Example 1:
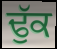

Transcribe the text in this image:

ਢੁੱਕ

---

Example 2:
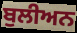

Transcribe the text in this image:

ਬੁਲੀਅਨ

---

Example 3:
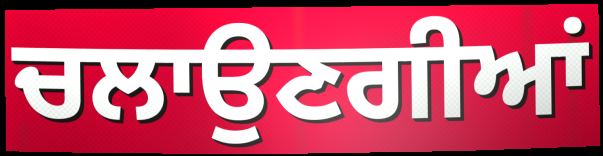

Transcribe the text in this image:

ਚਲਾਉਣਗੀਆਂ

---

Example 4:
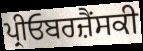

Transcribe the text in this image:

ਪ੍ਰੀਓਬਰਜ਼ੈਂਸਕੀ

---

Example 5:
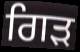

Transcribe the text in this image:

ਗਿੜ